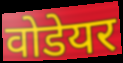
वोडेयर